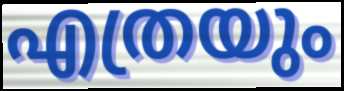
എത്രയും